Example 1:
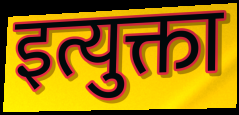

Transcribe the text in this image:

इत्युक्ता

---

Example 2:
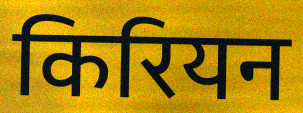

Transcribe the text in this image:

किरियन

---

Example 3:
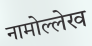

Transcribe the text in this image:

नामोल्लेख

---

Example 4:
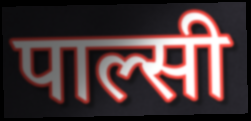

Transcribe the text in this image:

पाल्सी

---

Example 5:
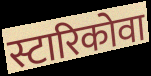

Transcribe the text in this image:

स्टारिकोवा